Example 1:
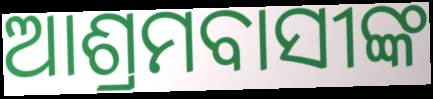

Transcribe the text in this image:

ଆଶ୍ରମବାସୀଙ୍କ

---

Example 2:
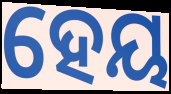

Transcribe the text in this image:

ହେୟ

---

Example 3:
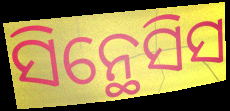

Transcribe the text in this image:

ସିନ୍ଥେସିସ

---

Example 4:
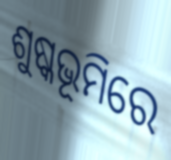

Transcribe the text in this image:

ଶୁଷ୍କଭୂମିରେ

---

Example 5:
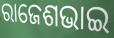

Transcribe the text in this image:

ରାଜେଶଭାଇ